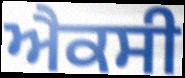
ਐਕਸੀ